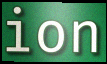
ion